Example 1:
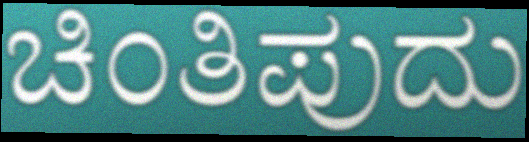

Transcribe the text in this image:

ಚಿಂತಿಪುದು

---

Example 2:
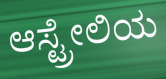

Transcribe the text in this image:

ಆಸ್ಟ್ರೇಲಿಯ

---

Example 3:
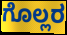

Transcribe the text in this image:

ಗೊಲ್ಲರ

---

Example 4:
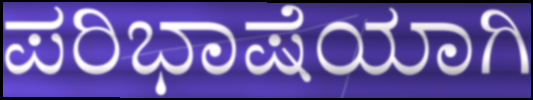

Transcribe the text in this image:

ಪರಿಭಾಷೆಯಾಗಿ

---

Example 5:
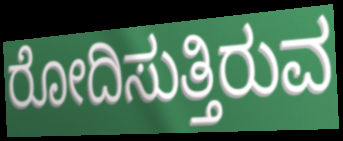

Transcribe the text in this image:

ರೋದಿಸುತ್ತಿರುವ